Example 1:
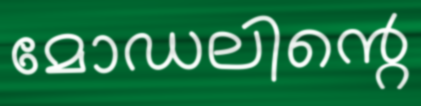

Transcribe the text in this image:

മോഡലിന്റെ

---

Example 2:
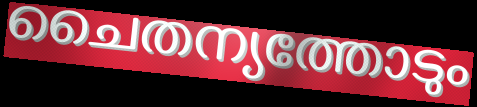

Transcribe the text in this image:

ചൈതന്യത്തോടും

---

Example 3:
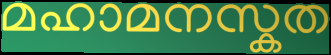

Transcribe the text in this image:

മഹാമനസ്കത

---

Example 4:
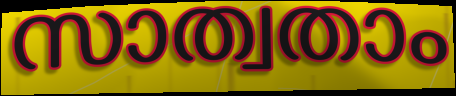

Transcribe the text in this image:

സാത്വതാം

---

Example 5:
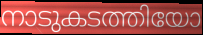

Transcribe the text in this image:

നാടുകടത്തിയോ